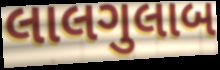
લાલગુલાબ